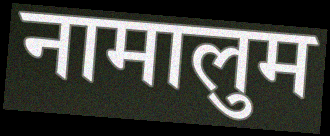
नामालुम